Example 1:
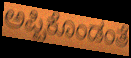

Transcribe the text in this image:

ಅಪ್ಪಿಕೊಂಡಂತೆ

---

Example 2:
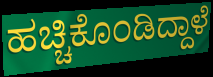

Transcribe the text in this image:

ಹಚ್ಚಿಕೊಂಡಿದ್ದಾಳೆ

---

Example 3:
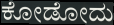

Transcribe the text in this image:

ಕೋಡೋದು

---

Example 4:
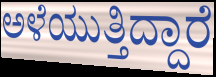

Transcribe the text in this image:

ಅಳೆಯುತ್ತಿದ್ದಾರೆ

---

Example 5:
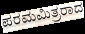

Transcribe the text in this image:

ಪರಮಮಿತ್ರರಾದ